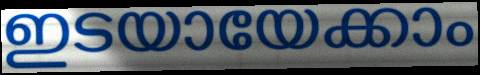
ഇടയായേക്കാം